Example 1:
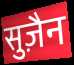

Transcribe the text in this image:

सुज़ैन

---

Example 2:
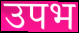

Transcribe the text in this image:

उपभ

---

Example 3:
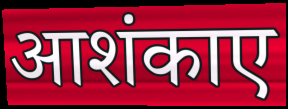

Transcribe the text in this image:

आशंकाए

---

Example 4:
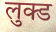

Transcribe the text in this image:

लुक्ड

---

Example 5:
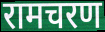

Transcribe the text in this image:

रामचरण